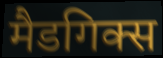
मैडगिक्स